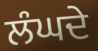
ਲੰਘਦੇ